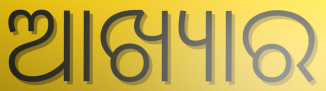
ଆଖ୍ୟାର